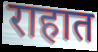
राहात